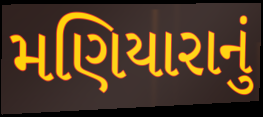
મણિયારાનું